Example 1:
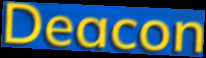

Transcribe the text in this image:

Deacon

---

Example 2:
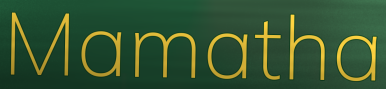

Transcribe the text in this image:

Mamatha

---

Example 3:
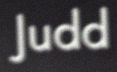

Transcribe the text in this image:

Judd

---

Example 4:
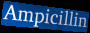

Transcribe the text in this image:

Ampicillin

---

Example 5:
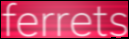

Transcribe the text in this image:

ferrets